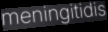
meningitidis